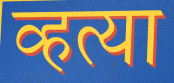
व्हत्या